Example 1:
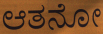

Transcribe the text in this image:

ಆತನೋ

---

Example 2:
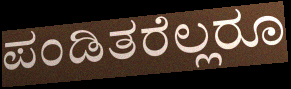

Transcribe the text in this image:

ಪಂಡಿತರೆಲ್ಲರೂ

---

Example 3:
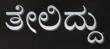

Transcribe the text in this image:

ತೇಲಿದ್ದು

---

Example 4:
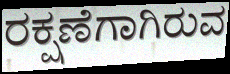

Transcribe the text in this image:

ರಕ್ಷಣೆಗಾಗಿರುವ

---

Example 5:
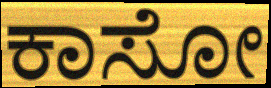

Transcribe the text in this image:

ಕಾಸೋ